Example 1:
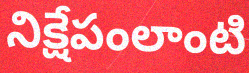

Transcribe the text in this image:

నిక్షేపంలాంటి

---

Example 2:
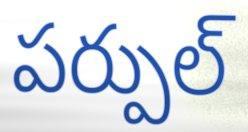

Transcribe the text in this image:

పర్పుల్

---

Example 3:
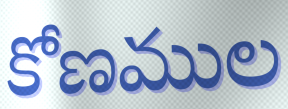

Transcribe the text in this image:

కోణముల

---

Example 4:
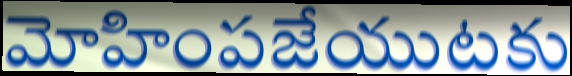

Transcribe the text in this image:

మోహింపజేయుటకు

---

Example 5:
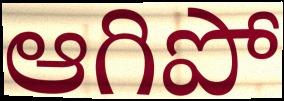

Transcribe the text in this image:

ఆగిపో